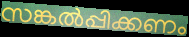
സങ്കൽപ്പിക്കണം